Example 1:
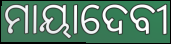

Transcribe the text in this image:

ମାୟାଦେବୀ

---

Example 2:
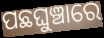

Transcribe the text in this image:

ପଛଘୁଞ୍ଚାରେ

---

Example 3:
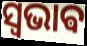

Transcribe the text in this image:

ସ୍ଵଭାଵ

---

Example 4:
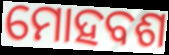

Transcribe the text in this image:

ମୋହବଶ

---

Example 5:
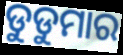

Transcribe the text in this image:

ଡୁଡୁମାର